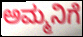
ಅಮ್ಮನಿಗೆ